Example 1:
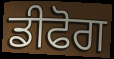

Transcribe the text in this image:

ਡੀਫੋਗ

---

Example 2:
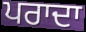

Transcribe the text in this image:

ਪਰਾਦਾ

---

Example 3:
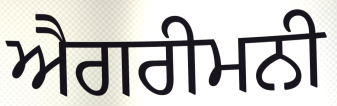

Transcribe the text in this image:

ਐਗਰੀਮਨੀ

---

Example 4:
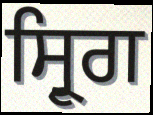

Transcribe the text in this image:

ਸ੍ਟ੍ਰਿਗ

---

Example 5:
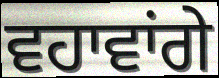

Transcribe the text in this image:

ਵਹਾਵਾਂਗੇ